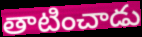
తాటించాడు